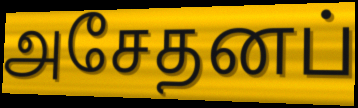
அசேதனப்